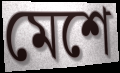
মেশে